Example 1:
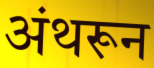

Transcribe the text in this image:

अंथरून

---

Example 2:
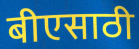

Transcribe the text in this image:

बीएसाठी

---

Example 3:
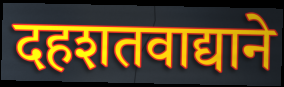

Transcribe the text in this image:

दहशतवाद्याने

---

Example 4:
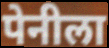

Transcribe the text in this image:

पेनीला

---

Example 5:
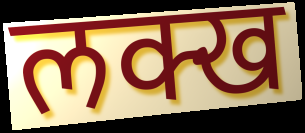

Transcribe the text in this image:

लक्ख